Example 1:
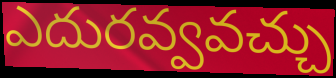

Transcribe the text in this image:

ఎదురవ్వవచ్చు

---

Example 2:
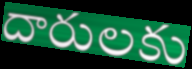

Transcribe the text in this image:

దారులకు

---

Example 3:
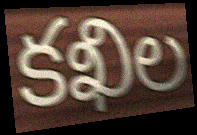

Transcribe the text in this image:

కఖిల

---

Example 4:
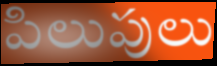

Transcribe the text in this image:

పిలుపులు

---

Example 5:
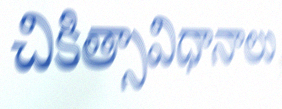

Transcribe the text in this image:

చికిత్సావిధానాలు